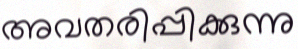
അവതരിപ്പിക്കുന്നു